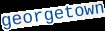
georgetown